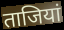
ताजियां